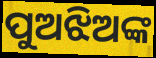
ପୁଅଝିଅଙ୍କ